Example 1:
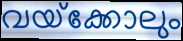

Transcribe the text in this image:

വയ്‌ക്കോലും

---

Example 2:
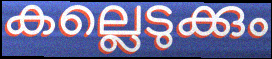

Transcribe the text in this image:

കല്ലെടുക്കും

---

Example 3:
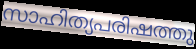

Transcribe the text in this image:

സാഹിത്യപരിഷത്തു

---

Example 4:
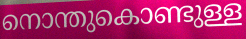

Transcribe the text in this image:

നൊന്തുകൊണ്ടുള്ള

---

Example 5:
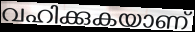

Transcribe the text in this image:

വഹിക്കുകയാണ്